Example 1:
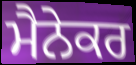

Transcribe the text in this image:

ਮੈਨੇਕਰ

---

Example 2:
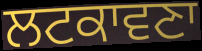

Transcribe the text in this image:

ਲਟਕਾਵਣਾ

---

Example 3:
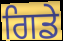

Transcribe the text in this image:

ਗਿਡੇ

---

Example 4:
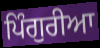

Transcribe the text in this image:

ਪਿੰਗੁਰੀਆ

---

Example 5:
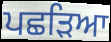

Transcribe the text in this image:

ਪਛੜਿਆ